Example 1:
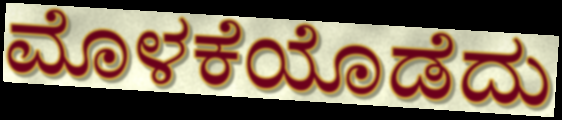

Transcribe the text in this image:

ಮೊಳಕೆಯೊಡೆದು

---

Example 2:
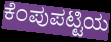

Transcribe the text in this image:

ಕೆಂಪುಪಟ್ಟಿಯ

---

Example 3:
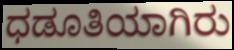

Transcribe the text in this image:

ಧಡೂತಿಯಾಗಿರು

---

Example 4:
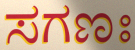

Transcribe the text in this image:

ಸಗಣಃ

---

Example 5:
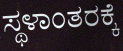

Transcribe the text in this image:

ಸ್ಥಳಾಂತರಕ್ಕೆ